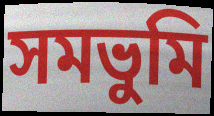
সমভুমি